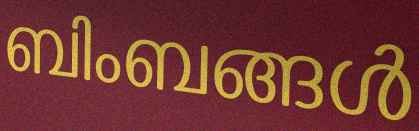
ബിംബങ്ങൾ